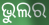
ଭୁଲର